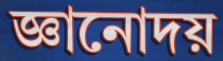
জ্ঞানোদয়